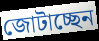
জোটাচ্ছেন